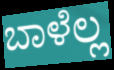
ಬಾಳೆಲ್ಲ